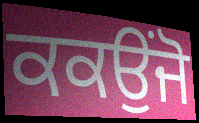
ਕਕਉਂਜੋ